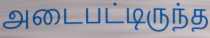
அடைபட்டிருந்த